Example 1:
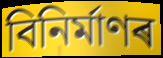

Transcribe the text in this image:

বিনিৰ্মাণৰ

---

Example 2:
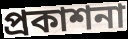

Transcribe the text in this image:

প্ৰকাশনা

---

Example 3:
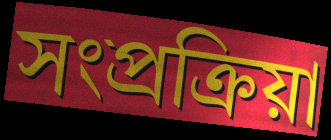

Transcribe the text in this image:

সংপ্ৰক্ৰিয়া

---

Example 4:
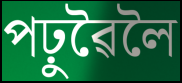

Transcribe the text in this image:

পঢ়ুৱৈলৈ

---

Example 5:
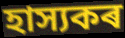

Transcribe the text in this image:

হাস্যকৰ